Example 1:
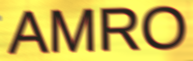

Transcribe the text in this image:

AMRO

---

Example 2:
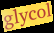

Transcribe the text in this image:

glycol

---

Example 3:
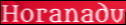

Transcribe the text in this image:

Horanadu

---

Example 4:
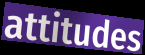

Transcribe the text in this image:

attitudes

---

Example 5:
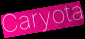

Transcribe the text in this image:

Caryota